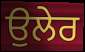
ਉਲੇਰ